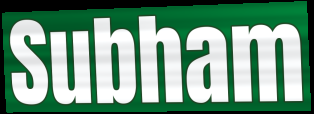
Subham